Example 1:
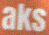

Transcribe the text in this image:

aks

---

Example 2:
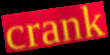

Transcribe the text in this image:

crank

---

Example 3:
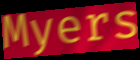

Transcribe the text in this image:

Myers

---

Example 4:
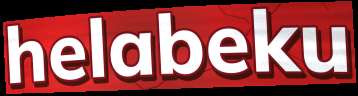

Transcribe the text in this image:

helabeku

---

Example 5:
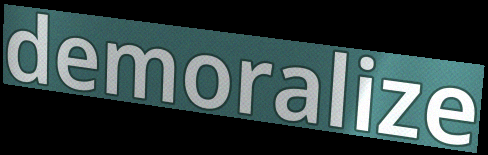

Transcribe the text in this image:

demoralize